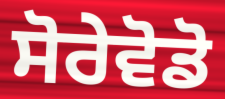
ਸੋਰੇਵੋਡੋ